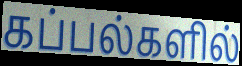
கப்பல்களில்